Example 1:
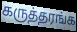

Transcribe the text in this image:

கருத்தரங்க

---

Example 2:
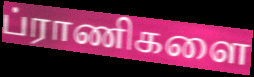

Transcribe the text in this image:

ப்ராணிகளை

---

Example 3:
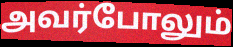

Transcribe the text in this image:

அவர்போலும்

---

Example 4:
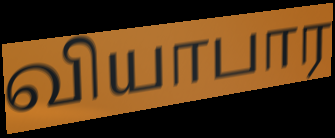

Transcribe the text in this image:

வியாபார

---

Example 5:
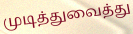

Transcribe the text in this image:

முடித்துவைத்து